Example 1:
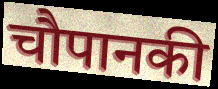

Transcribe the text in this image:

चौपानकी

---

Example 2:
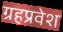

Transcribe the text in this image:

ग्रहप्रवेश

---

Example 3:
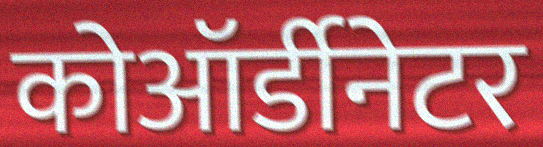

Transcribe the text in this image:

कोऑर्डीनेटर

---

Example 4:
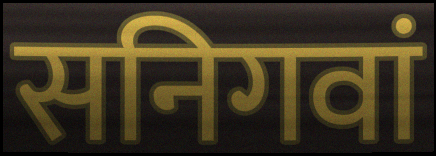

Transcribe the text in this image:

सनिगवां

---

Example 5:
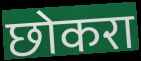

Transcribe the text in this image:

छोकरा